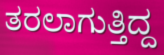
ತರಲಾಗುತ್ತಿದ್ದ